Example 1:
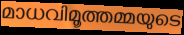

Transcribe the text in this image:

മാധവിമൂത്തമ്മയുടെ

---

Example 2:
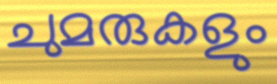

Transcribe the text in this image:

ചുമരുകളും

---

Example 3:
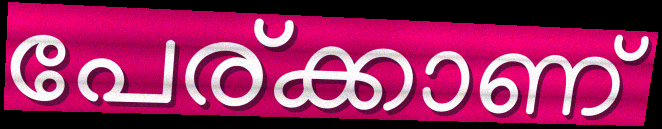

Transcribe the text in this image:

പേര്ക്കാണ്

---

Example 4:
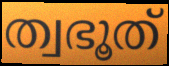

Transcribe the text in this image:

ത്വഭൂത്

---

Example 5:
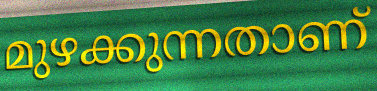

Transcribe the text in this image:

മുഴക്കുന്നതാണ്